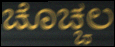
ಚೊಚ್ಚಲ